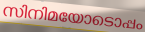
സിനിമയോടൊപ്പം